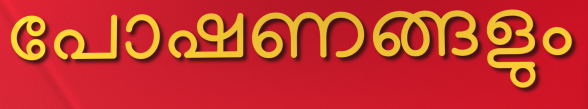
പോഷണങ്ങളും